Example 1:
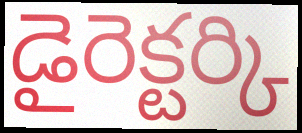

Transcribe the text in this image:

డైరెక్టర్కి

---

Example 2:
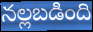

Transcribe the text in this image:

నల్లబడింది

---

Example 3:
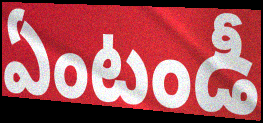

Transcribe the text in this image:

ఏంటండీ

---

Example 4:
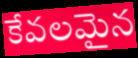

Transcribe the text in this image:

కేవలమైన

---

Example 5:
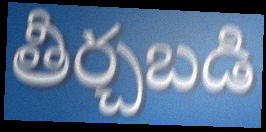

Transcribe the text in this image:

తీర్చబడి